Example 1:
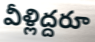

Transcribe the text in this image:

వీళ్లిద్దరూ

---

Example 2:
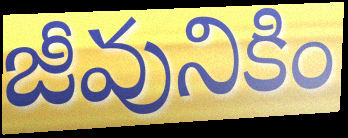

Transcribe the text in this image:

జీవునికిం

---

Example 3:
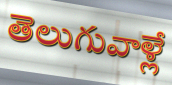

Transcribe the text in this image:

తెలుగువాళ్లే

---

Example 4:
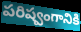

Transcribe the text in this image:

పరిష్వంగానికి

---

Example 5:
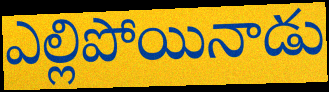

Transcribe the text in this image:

ఎల్లిపోయినాడు